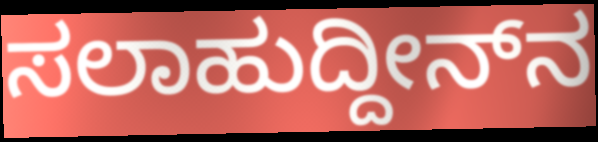
ಸಲಾಹುದ್ದೀನ್‍ನ